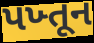
પખ્તૂન